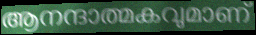
ആനന്ദാത്മകവുമാണ്